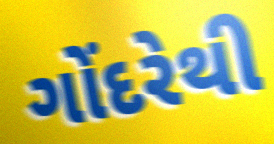
ગોંદરેથી